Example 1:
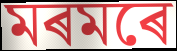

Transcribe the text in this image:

মৰমৰে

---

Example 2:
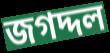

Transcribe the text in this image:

জগদ্দল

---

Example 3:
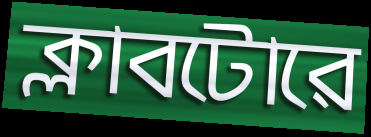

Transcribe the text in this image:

ক্লাবটোৱে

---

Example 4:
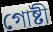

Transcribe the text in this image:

গোষ্টী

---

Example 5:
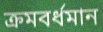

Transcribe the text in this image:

ক্ৰমবৰ্ধমান